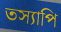
তস্যাপি